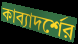
কাব্যাদর্শের